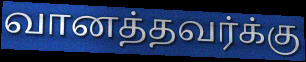
வானத்தவர்க்கு